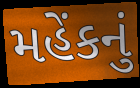
મહેંકનું